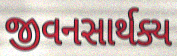
જીવનસાર્થક્ય